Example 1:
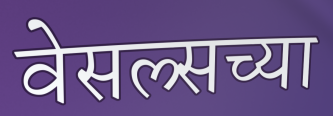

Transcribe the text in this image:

वेसल्सच्या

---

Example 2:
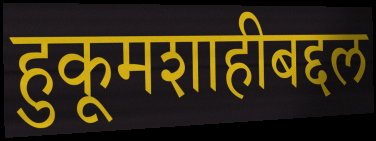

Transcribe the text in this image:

हुकूमशाहीबद्दल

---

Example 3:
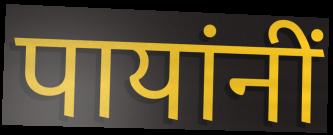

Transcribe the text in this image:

पायांनीं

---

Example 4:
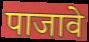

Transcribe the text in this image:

पाजावे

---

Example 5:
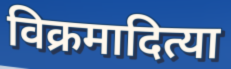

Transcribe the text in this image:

विक्रमादित्या